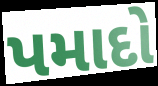
પમાદો